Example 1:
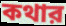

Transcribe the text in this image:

কথার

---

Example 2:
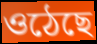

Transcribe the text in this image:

ওঠেছে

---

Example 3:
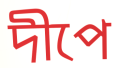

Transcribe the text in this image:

দীপে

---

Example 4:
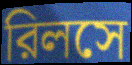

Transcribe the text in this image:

রিলসে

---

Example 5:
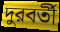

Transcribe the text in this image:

দুরবর্তী